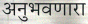
अनुभवणारा